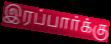
இரப்பார்க்கு